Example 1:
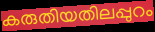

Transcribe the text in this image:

കരുതിയതിലപ്പുറം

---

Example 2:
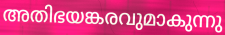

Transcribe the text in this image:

അതിഭയങ്കരവുമാകുന്നു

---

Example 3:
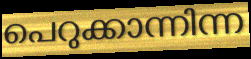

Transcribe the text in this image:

പെറുക്കാന്നിന്ന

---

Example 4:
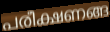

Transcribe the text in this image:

പരീക്ഷണങ്ങ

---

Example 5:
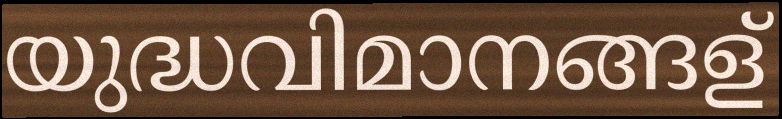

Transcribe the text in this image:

യുദ്ധവിമാനങ്ങള്